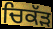
ਚਿਕੱੜ